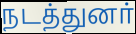
நடத்துனர்